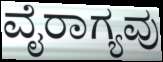
ವೈರಾಗ್ಯವು